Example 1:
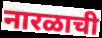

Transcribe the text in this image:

नारळाची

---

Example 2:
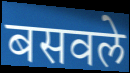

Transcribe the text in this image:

बसवले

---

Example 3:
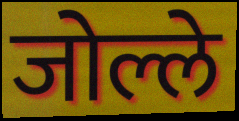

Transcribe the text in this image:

जोल्ले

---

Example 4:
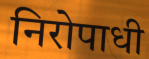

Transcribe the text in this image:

निरोपाधी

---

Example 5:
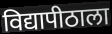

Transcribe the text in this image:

विद्यापीठाला